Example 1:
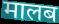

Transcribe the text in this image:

मालब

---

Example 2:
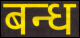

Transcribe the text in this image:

बन्ध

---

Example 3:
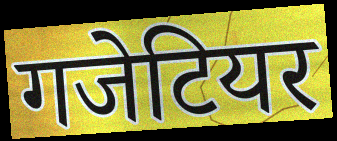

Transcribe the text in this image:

गजेटियर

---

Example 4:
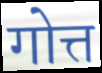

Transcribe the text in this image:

गोत्त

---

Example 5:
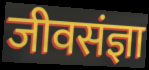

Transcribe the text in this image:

जीवसंज्ञा